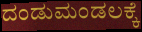
ದಂಡುಮಂಡಲಕ್ಕೆ